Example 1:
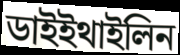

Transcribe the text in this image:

ডাইইথাইলিন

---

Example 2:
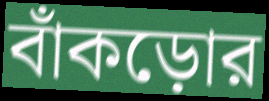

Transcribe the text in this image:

বাঁকড়োর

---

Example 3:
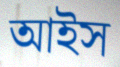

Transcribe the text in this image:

আইস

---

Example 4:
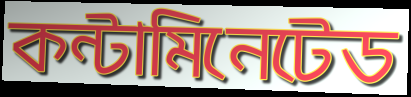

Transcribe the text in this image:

কন্টামিনেটেড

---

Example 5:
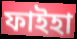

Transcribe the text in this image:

ফাইহা